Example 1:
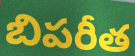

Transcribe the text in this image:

బిపరీత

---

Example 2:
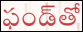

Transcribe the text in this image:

ఫండ్‌తో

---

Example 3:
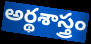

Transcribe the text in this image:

అర్థశాస్త్రం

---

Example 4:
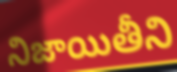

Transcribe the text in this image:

నిజాయితీని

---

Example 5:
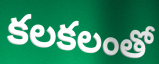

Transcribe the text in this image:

కలకలంతో